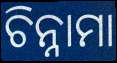
ଚିନ୍ନାମା